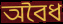
অবৈধ